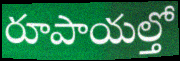
రూపాయల్తో